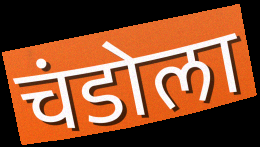
चंडोला